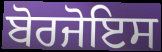
ਬੋਰਜੋਇਸ